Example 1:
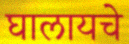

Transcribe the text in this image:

घालायचे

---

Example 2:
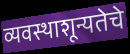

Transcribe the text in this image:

व्यवस्थाशून्यतेचे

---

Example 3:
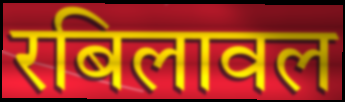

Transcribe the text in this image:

रबिलावल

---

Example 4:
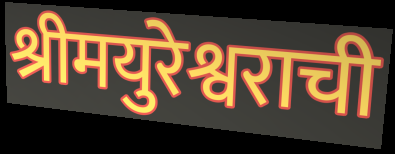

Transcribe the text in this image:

श्रीमयुरेश्वराची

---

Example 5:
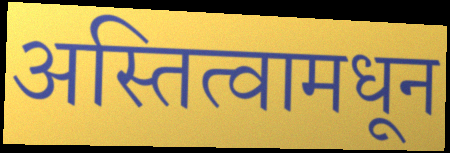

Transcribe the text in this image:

अस्तित्वामधून